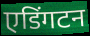
एडिंगटन